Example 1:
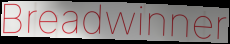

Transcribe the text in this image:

Breadwinner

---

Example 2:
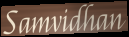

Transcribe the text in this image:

Samvidhan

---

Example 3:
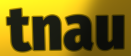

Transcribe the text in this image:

tnau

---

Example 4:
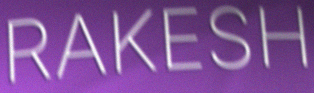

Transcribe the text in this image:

RAKESH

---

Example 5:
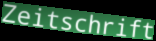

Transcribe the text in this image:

Zeitschrift